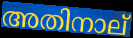
അതിനാല്